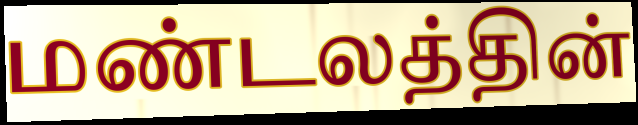
மண்டலத்தின்